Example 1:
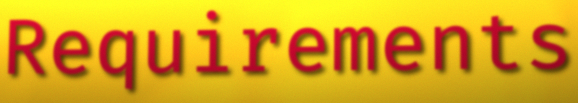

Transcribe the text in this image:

Requirements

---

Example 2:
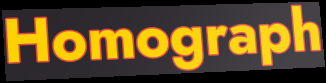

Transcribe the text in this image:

Homograph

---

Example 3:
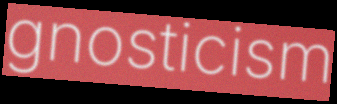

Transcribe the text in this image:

gnosticism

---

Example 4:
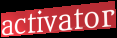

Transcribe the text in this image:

activator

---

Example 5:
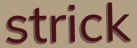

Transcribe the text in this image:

strick